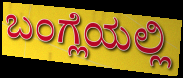
ಬಂಗ್ಲೆಯಲ್ಲಿ